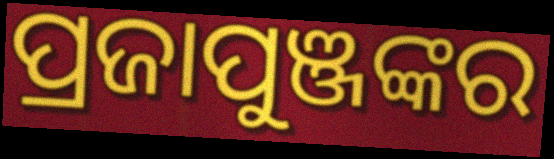
ପ୍ରଜାପୁଞ୍ଜଙ୍କର